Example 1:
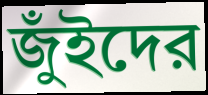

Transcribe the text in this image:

জুঁইদের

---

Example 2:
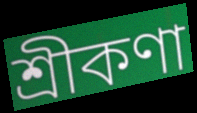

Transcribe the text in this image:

শ্রীকণা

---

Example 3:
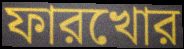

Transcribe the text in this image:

ফারখোর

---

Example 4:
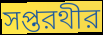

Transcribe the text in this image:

সপ্তরথীর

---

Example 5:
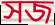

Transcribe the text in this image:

সজ